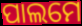
ପାଲମେ